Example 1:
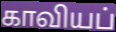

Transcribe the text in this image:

காவியப்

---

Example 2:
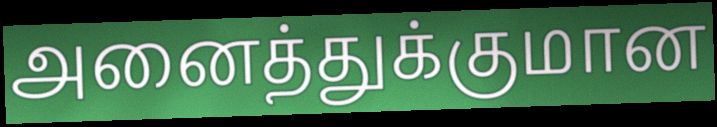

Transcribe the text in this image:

அனைத்துக்குமான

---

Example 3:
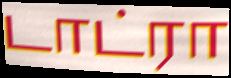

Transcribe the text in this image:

டாட்ரா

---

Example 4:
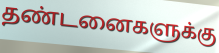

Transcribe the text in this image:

தண்டனைகளுக்கு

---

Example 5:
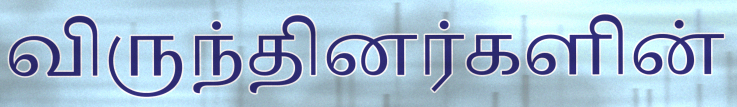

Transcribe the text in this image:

விருந்தினர்களின்